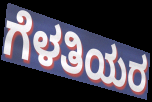
ಗೆಳತಿಯರ